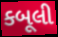
કબૂલી